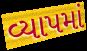
વ્યાપમાં